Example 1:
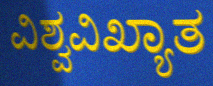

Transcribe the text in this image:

ವಿಶ್ವವಿಖ್ಯಾತ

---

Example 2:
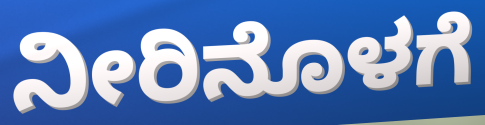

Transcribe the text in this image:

ನೀರಿನೊಳಗೆ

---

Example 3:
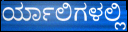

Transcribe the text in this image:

ರ್ಯಾಲಿಗಳಲ್ಲಿ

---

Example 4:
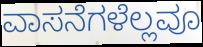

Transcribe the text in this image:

ವಾಸನೆಗಳೆಲ್ಲವೂ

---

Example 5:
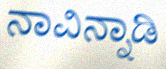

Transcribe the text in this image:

ನಾವಿನ್ನಾಡಿ